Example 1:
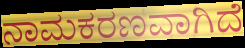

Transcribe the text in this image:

ನಾಮಕರಣವಾಗಿದೆ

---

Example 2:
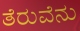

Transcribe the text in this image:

ತೆರುವೆನು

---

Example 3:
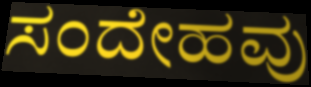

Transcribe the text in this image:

ಸಂದೇಹವು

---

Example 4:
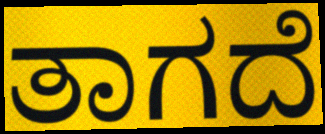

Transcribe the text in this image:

ತಾಗದೆ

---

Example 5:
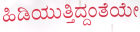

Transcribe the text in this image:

ಹಿಡಿಯುತ್ತಿದ್ದಂತೆಯೇ